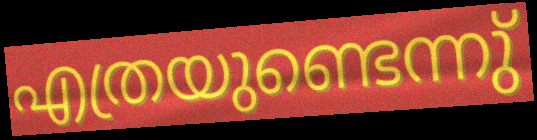
എത്രയുണ്ടെന്നു്